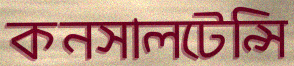
কনসালটেন্সি